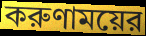
করুণাময়ের